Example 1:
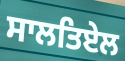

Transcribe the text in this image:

ਸਾਲਤਿਏਲ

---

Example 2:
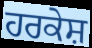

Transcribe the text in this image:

ਹਰਕੇਸ਼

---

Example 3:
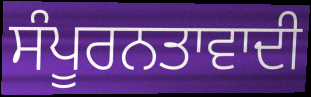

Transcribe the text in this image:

ਸੰਪੂਰਨਤਾਵਾਦੀ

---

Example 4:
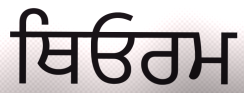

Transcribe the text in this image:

ਥਿਓਰਮ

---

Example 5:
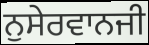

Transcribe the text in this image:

ਨੁਸੇਰਵਾਨਜੀ